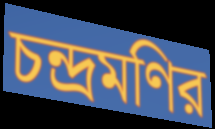
চন্দ্রমণির